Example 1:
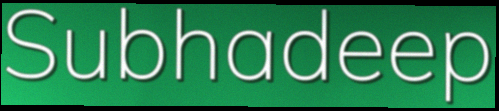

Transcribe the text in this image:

Subhadeep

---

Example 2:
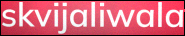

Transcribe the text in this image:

skvijaliwala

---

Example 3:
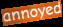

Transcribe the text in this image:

annoyed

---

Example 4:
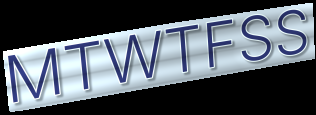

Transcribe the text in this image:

MTWTFSS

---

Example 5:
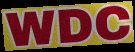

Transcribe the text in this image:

WDC